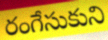
రంగేసుకుని